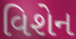
વિશેન